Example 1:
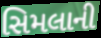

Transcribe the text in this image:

સિમલાની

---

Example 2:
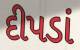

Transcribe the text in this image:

દીપડાં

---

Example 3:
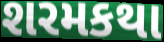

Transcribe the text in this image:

શરમકથા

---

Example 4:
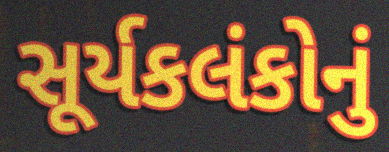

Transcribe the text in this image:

સૂર્યકલંકોનું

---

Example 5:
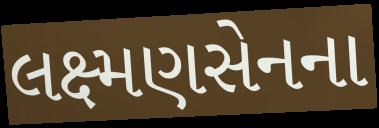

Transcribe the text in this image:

લક્ષ્મણસેનના